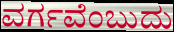
ವರ್ಗವೆಂಬುದು